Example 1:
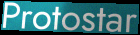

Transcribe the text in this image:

Protostar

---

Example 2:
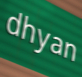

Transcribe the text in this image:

dhyan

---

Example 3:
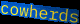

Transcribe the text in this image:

cowherds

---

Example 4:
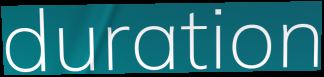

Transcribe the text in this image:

duration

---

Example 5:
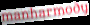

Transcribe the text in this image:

manharmody